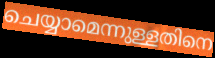
ചെയ്യാമെന്നുള്ളതിനെ